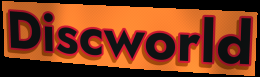
Discworld